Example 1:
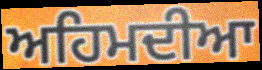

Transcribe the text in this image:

ਅਹਿਮਦੀਆ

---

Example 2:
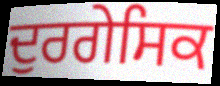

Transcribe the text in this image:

ਦੁਰਗੇਸਿਕ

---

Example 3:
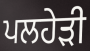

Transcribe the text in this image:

ਪਲਹੇੜੀ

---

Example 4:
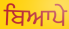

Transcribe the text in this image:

ਬਿਆਪੇ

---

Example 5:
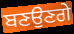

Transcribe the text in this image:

ਬਣਉਣਗੇ